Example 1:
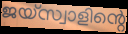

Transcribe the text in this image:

ജയ്സ്വാളിന്റെ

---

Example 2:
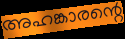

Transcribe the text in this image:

അഹങ്കാരന്റെ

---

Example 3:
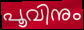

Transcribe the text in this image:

പൂവിനും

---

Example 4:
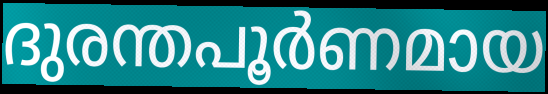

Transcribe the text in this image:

ദുരന്തപൂർണമായ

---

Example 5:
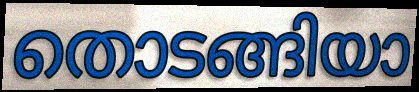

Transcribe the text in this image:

തൊടങ്ങിയാ